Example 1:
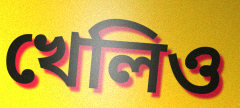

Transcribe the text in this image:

খেলিও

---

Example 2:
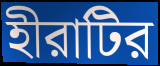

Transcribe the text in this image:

হীরাটির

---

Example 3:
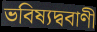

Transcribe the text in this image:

ভবিষ্যদ্ববাণী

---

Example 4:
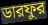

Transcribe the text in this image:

ডারফুর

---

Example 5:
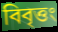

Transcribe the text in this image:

বিবৃত্তং